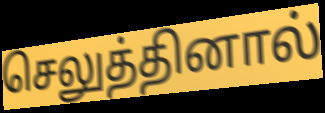
செலுத்தினால்